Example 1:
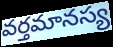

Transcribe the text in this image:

వర్తమానస్య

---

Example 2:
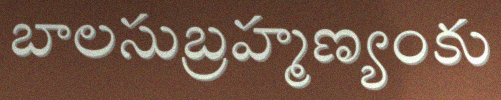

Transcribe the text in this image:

బాలసుబ్రహ్మణ్యంకు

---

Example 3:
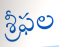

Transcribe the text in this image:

శ్రీఫల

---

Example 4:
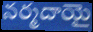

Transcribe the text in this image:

నర్మదాయై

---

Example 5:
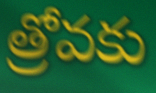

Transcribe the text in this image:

త్రోవకు